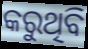
କରୁଥିବି